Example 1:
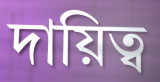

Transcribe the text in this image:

দায়িত্ব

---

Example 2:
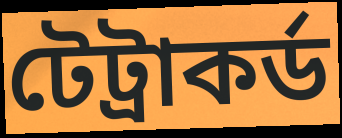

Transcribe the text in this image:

টেট্ৰাকৰ্ড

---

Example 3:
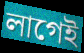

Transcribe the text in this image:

লাগেই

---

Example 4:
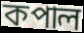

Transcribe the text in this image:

কপাল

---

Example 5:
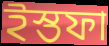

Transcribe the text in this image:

ইস্তফা